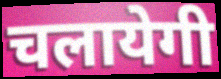
चलायेगी